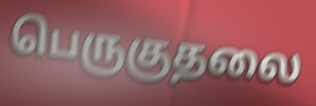
பெருகுதலை